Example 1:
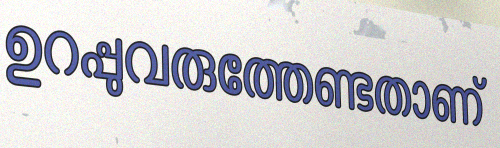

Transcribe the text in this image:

ഉറപ്പുവരുത്തേണ്ടതാണ്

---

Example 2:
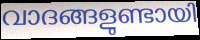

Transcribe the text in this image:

വാദങ്ങളുണ്ടായി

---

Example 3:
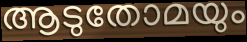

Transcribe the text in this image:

ആടുതോമയും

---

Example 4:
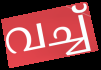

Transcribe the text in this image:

വച്ച്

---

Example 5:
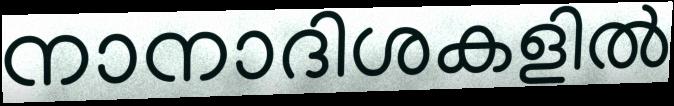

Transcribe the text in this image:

നാനാദിശകളിൽ